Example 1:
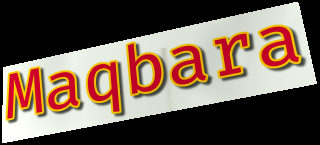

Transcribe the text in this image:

Maqbara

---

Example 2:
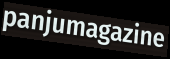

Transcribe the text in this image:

panjumagazine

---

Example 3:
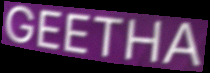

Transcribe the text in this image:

GEETHA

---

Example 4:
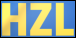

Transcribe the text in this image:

HZL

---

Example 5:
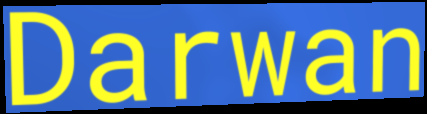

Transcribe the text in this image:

Darwan